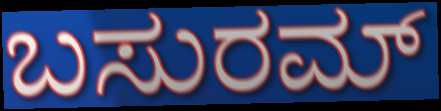
ಬಸುರಮ್